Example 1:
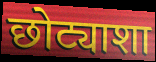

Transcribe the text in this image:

छोट्याशा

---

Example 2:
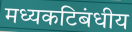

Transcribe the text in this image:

मध्यकटिबंधीय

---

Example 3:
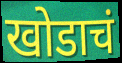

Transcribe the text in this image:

खोडाचं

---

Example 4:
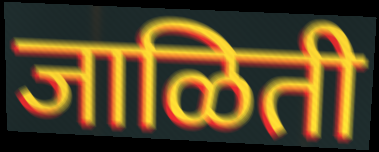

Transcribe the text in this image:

जाळिती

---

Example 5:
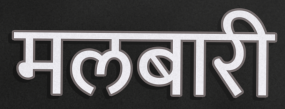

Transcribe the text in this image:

मलबारी